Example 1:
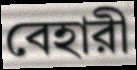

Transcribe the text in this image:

বেহারী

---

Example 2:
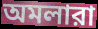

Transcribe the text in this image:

অমলারা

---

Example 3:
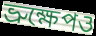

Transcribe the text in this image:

ভ্রুক্ষেপও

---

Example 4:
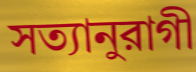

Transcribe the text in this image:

সত্যানুরাগী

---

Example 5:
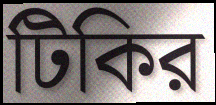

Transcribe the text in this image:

টিকির